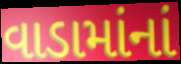
વાડામાંનાં